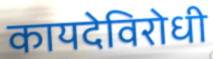
कायदेविरोधी